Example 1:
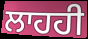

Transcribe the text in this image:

ਲਾਹਹੀ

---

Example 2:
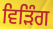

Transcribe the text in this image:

ਵਿੜਿੰਗ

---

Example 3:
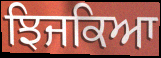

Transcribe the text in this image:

ਝਿਜਕਿਆ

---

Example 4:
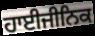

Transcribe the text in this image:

ਹਾਈਜੀਨਿਕ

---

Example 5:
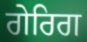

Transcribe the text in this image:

ਗੇਰਿਗ